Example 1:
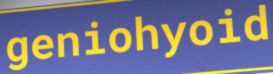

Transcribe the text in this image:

geniohyoid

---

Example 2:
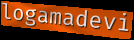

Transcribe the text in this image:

logamadevi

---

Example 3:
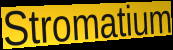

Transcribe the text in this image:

Stromatium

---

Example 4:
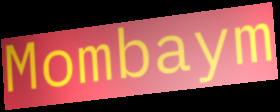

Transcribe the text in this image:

Mombaym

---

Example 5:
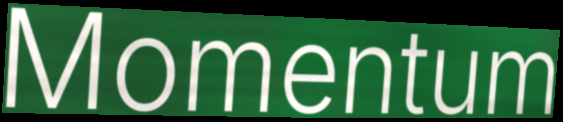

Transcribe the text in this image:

Momentum